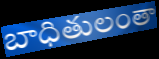
బాధితులంతా